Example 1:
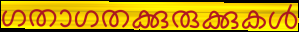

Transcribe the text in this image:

ഗതാഗതക്കുരുക്കുകൾ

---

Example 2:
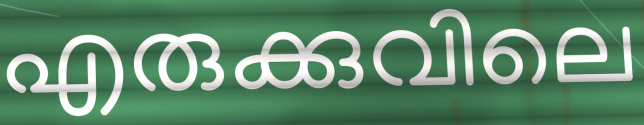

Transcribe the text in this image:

എരുക്കുവിലെ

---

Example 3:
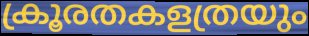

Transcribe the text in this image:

ക്രൂരതകളത്രയും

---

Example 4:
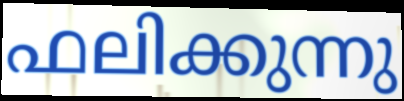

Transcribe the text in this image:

ഫലിക്കുന്നു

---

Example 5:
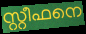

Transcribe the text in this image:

സ്റ്റീഫനെ